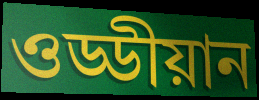
ওড্ডীয়ান